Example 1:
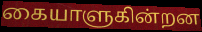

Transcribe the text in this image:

கையாளுகின்றன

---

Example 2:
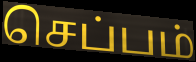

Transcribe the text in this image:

செப்பம்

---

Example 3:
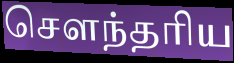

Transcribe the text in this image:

சௌந்தரிய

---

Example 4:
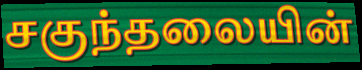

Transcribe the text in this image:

சகுந்தலையின்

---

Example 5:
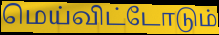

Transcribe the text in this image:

மெய்விட்டோடும்